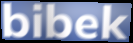
bibek